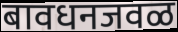
बावधनजवळ